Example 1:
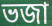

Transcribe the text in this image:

ভজা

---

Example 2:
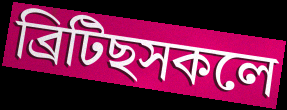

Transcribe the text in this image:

ব্ৰিটিছসকলে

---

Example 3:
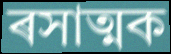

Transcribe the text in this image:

ৰসাত্মক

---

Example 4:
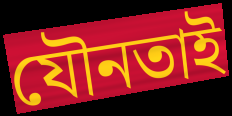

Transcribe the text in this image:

যৌনতাই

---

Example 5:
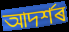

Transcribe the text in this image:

আদৰ্শৰ